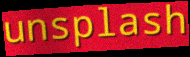
unsplash